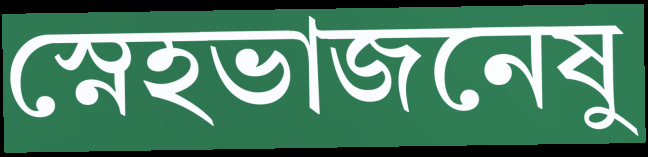
স্নেহভাজনেষু